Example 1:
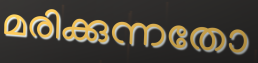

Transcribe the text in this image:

മരിക്കുന്നതോ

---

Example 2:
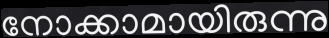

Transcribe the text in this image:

നോക്കാമായിരുന്നു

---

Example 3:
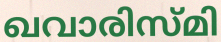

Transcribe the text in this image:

ഖവാരിസ്മി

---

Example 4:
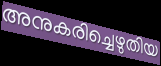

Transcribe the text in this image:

അനുകരിച്ചെഴുതിയ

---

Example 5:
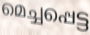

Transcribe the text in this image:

മെച്ചപ്പെട്ട